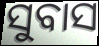
ସୁବାସ